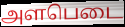
அளபெடை